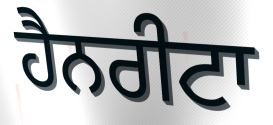
ਹੈਨਰੀਟਾ